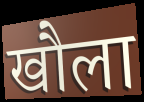
खौला